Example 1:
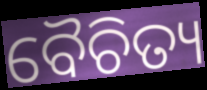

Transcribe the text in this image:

ବୈଚିତ୍ୟ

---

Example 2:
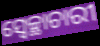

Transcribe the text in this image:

ସ୍ୱେଚ୍ଛାଚାରୀ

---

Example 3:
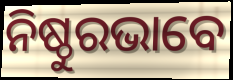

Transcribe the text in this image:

ନିଷ୍ଠୁରଭାବେ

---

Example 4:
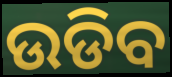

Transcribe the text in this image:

ଉଡିବ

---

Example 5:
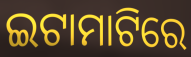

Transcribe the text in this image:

ଇଟାମାଟିରେ